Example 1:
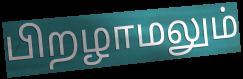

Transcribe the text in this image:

பிறழாமலும்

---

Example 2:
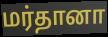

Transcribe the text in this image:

மர்தானா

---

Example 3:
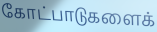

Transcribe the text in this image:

கோட்பாடுகளைக்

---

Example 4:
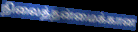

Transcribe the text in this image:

நிலைத்தன்மைக்கான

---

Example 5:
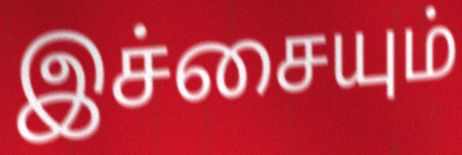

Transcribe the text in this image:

இச்சையும்